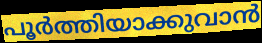
പൂർത്തിയാക്കുവാൻ